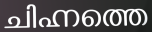
ചിഹ്നത്തെ